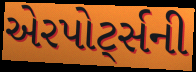
એરપોર્ટ્સની